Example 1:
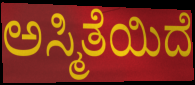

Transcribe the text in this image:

ಅಸ್ಮಿತೆಯಿದೆ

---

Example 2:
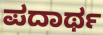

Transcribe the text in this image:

ಪದಾರ್ಥ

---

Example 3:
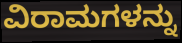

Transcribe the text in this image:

ವಿರಾಮಗಳನ್ನು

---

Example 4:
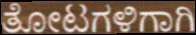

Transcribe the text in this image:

ತೋಟಗಳಿಗಾಗಿ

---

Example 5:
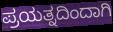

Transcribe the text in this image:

ಪ್ರಯತ್ನದಿಂದಾಗಿ